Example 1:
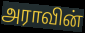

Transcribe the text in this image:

அராவின்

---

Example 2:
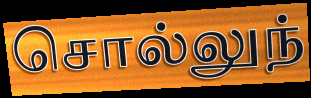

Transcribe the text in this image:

சொல்லுந்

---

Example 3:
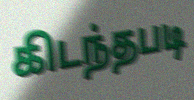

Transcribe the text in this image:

கிடந்தபடி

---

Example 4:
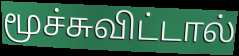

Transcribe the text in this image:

மூச்சுவிட்டால்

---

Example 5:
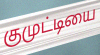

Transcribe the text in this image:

குமுட்டியை